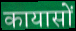
कायासों